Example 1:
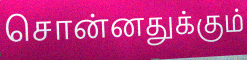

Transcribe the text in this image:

சொன்னதுக்கும்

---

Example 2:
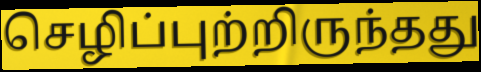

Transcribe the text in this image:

செழிப்புற்றிருந்தது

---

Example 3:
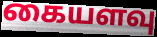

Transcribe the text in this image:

கையளவு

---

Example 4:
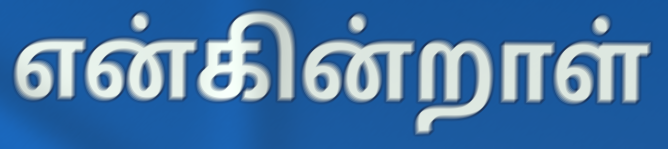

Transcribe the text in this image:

என்கின்றாள்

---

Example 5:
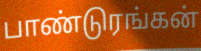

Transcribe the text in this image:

பாண்டுரங்கன்